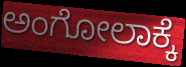
ಅಂಗೋಲಾಕ್ಕೆ